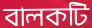
বালকটি